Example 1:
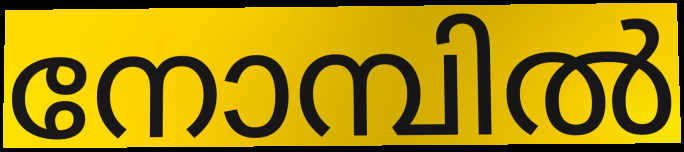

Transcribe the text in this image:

നോമ്പിൽ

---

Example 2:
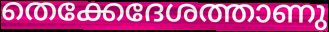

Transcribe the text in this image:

തെക്കേദേശത്താണു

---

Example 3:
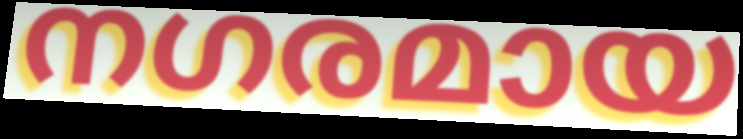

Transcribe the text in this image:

നഗരമായ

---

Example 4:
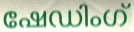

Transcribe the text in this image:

ഷേഡിംഗ്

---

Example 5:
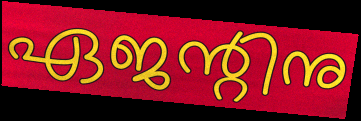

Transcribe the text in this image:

ഏജന്റിനു